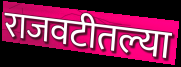
राजवटीतल्या